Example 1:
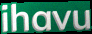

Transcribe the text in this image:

ihavu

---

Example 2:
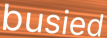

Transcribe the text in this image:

busied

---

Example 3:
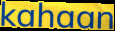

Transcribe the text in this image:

kahaan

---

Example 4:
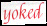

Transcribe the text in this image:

yoked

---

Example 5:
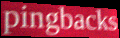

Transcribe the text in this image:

pingbacks